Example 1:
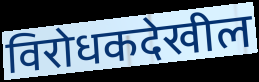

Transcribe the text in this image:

विरोधकदेखील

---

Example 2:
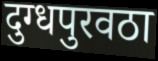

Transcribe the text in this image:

दुग्धपुरवठा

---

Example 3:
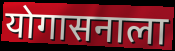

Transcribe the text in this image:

योगासनाला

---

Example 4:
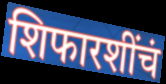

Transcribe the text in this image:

शिफारशींचं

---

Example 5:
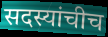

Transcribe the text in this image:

सदस्यांचीच